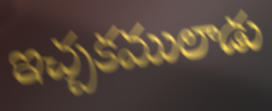
ఇచ్చకములాడు